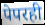
पेपरही